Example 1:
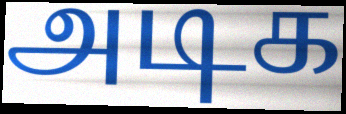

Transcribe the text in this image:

அடிக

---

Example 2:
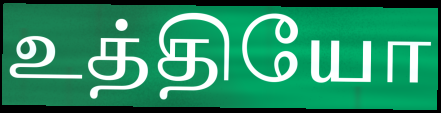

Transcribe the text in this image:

உத்தியோ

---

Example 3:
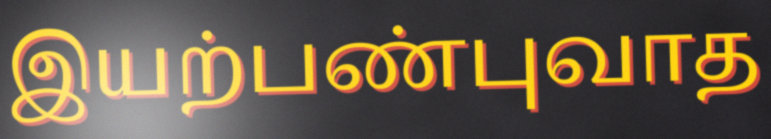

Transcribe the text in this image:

இயற்பண்புவாத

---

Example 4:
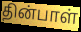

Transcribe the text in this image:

தின்பாள்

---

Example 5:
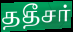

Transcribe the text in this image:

ததீசர்